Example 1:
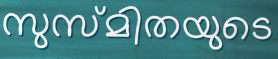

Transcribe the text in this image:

സുസ്മിതയുടെ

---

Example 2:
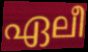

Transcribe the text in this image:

ഏലീ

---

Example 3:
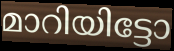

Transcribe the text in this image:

മാറിയിട്ടോ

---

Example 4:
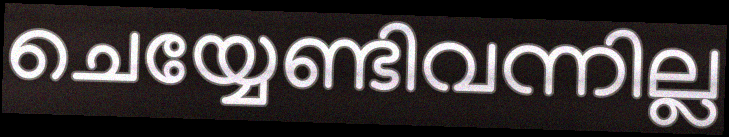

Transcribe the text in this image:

ചെയ്യേണ്ടിവന്നില്ല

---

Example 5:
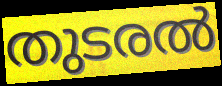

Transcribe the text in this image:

തുടരൽ